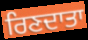
ਰਿਣਦਾਤਾ